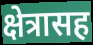
क्षेत्रासह